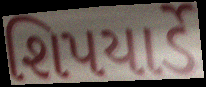
શિપયાર્ડે